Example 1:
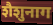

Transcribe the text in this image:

शैशुनाग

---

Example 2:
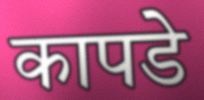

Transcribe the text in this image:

कापडे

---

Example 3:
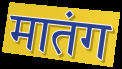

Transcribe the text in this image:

मातंग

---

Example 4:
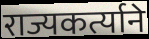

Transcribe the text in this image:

राज्यकर्त्याने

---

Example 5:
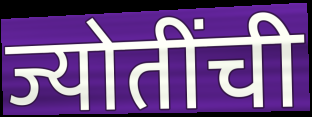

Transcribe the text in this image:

ज्योतींची